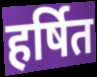
हर्षित